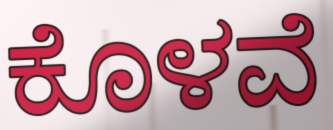
ಕೊಳವೆ